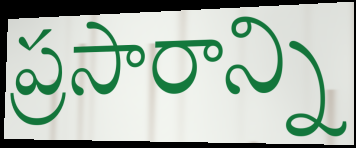
ప్రసారాన్ని